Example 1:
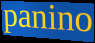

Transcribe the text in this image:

panino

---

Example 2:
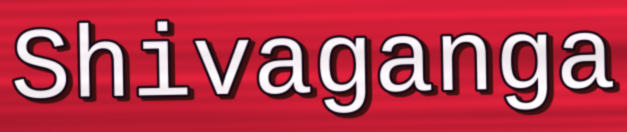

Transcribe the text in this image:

Shivaganga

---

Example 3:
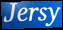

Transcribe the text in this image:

Jersy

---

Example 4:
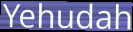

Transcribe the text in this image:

Yehudah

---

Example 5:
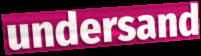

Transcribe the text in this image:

undersand